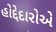
હોદ્દેદારોએ